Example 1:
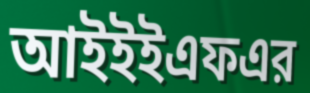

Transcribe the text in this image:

আইইইএফএর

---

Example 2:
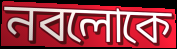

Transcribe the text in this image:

নবলোকে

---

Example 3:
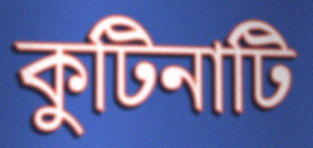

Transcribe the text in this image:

কুটিনাটি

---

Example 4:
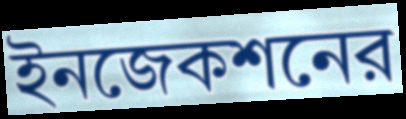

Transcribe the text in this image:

ইনজেকশনের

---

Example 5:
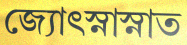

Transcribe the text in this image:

জ্যোৎস্নাস্নাত